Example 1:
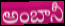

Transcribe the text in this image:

అంబానీ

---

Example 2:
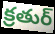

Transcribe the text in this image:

క్రతుర్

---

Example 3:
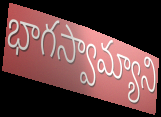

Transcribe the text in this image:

భాగస్వామ్యాని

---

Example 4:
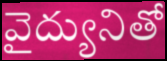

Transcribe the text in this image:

వైద్యునితో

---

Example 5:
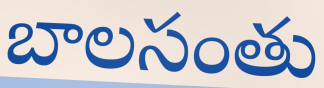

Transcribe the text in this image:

బాలసంతు